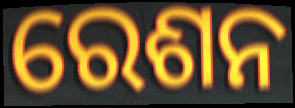
ରେଶନ